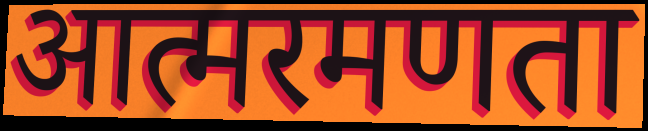
आत्मरमणता